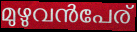
മുഴുവൻപേര്